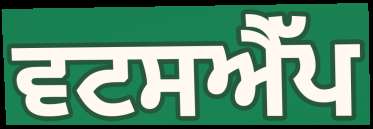
ਵਟਸਐੱਪ